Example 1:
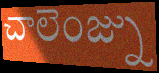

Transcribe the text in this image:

చాలెంజ్ను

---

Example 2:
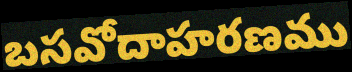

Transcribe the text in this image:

బసవోదాహరణము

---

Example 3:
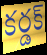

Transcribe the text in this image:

కర్డక్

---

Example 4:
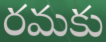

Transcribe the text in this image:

రమకు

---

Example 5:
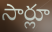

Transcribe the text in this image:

సార్లూ